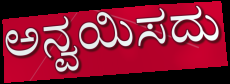
ಅನ್ವಯಿಸದು